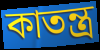
কাতন্ত্র